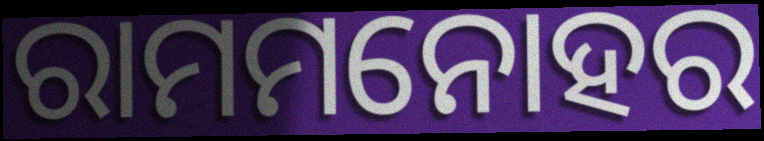
ରାମମନୋହର